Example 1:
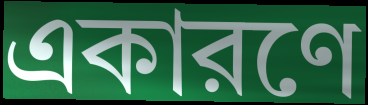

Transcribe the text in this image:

একারণে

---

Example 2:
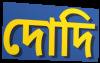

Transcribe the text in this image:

দোদি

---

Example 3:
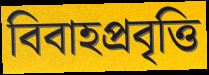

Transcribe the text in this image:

বিবাহপ্রবৃত্তি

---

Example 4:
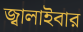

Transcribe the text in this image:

জ্বালাইবার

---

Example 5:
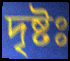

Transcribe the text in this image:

দৃষ্টঃ